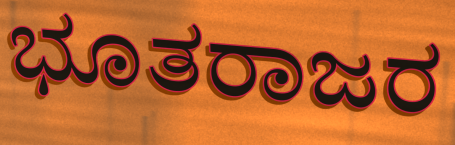
ಭೂತರಾಜರ